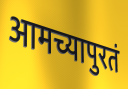
आमच्यापुरतं